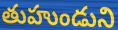
తుహుండుని